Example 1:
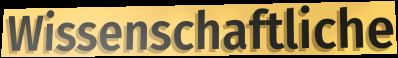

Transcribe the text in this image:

Wissenschaftliche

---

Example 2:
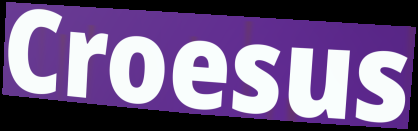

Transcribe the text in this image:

Croesus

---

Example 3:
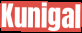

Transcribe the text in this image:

Kunigal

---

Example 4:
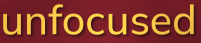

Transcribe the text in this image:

unfocused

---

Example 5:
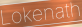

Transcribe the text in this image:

Lokenath